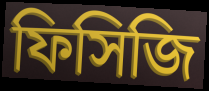
ফিসিজি